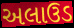
અલાઉડ